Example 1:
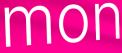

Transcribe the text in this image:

mon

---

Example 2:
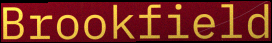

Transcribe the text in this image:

Brookfield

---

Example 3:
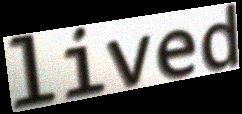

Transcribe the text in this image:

lived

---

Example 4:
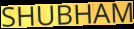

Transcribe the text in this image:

SHUBHAM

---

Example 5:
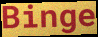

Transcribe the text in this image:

Binge